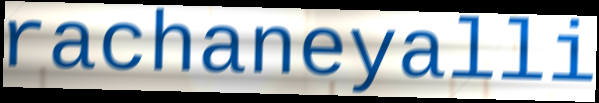
rachaneyalli